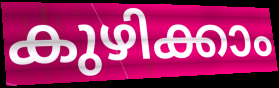
കുഴിക്കാം